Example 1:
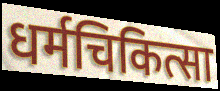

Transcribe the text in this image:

धर्मचिकित्सा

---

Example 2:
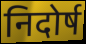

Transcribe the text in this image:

निदोर्ष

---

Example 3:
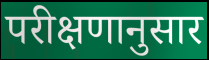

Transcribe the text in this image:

परीक्षणानुसार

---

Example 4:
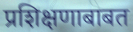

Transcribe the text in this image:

प्रशिक्षणाबाबत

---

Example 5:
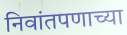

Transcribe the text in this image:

निवांतपणाच्या